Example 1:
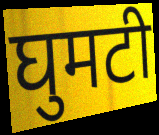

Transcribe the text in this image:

घुमटी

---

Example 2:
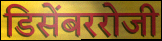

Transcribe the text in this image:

डिसेंबररोजी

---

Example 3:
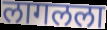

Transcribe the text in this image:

लागलला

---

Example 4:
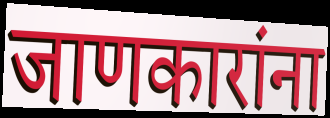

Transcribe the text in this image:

जाणकारांना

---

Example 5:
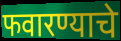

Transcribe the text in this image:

फवारण्याचे